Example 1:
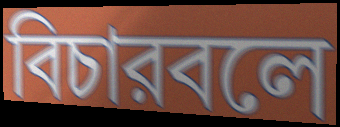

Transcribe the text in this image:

বিচারবলে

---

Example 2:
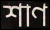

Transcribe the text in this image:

শাণ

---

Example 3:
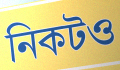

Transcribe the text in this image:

নিকটও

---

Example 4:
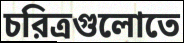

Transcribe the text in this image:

চরিত্রগুলোতে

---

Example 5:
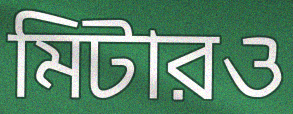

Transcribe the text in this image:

মিটারও